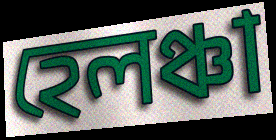
হেলঞ্চা